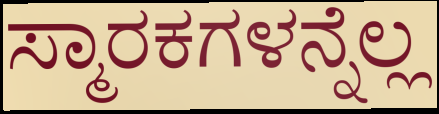
ಸ್ಮಾರಕಗಳನ್ನೆಲ್ಲ